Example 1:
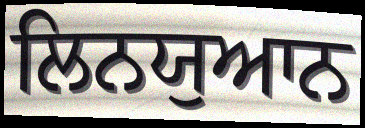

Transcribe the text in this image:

ਲਿਨਯੁਆਨ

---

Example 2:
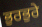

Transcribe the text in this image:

ਭੁਰਭੁਰੇ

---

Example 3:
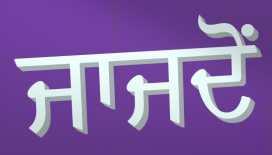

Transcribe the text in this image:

ਜਾਜਦੋਂ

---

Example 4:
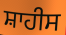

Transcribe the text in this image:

ਸ਼ਾਹੀਸ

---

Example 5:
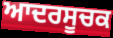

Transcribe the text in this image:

ਆਦਰਸੂਚਕ